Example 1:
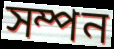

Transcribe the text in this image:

সম্পন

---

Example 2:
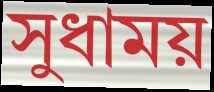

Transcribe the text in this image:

সুধাময়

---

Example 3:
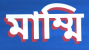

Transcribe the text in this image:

মাম্মি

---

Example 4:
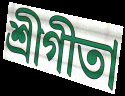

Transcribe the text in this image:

শ্রীগীতা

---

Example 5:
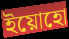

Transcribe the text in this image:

ইয়োহো